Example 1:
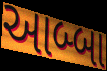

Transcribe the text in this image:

આબ્બા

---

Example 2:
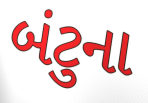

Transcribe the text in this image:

બંટુના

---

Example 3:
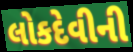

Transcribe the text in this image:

લોકદેવીની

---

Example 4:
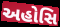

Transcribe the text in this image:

અહોસિ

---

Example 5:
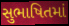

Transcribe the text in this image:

સુભાષિતમાં